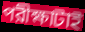
পরীক্ষাটাই